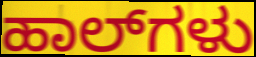
ಹಾಲ್‌ಗಳು